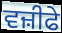
ਵਜ਼ੀਫੇ